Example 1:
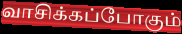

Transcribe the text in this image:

வாசிக்கப்போகும்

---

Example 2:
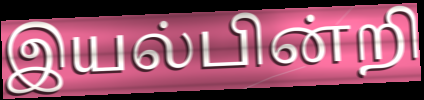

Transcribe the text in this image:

இயல்பின்றி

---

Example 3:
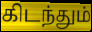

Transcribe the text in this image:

கிடந்தும்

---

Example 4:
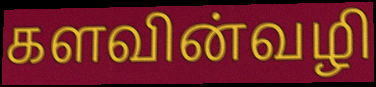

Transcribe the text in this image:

களவின்வழி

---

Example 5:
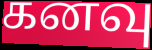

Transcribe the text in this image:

கனவு